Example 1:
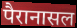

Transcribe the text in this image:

पैरानासल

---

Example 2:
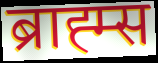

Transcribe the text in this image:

ब्राह्म्स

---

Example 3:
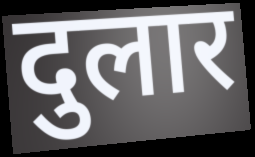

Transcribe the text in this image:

दुलार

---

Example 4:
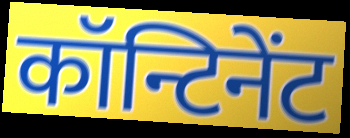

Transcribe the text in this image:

कॉन्टिनेंट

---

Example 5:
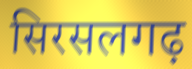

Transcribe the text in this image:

सिरसलगढ़